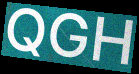
QGH